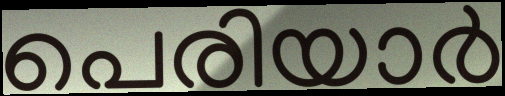
പെരിയാർ